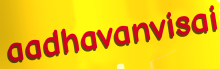
aadhavanvisai